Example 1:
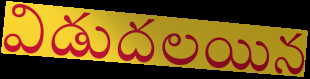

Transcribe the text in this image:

విడుదలయిన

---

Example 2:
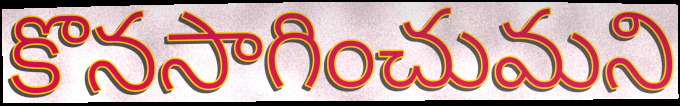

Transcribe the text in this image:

కొనసాగించుమని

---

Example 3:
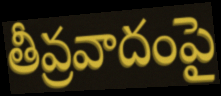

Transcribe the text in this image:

తీవ్రవాదంపై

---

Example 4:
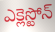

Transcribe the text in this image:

ఎక్లెస్టోన్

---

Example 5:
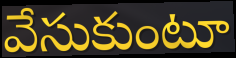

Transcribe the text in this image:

వేసుకుంటూ